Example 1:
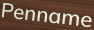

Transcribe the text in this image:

Penname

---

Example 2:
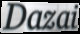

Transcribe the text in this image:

Dazai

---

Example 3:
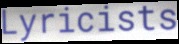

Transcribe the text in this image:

Lyricists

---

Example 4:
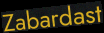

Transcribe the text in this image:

Zabardast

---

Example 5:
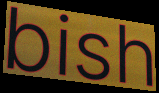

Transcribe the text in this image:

bish